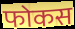
फोकस